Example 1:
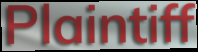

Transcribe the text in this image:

Plaintiff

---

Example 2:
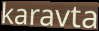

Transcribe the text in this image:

karavta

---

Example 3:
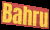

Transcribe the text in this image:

Bahru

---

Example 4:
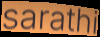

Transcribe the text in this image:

sarathi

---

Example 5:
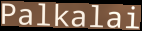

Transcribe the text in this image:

Palkalai